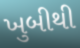
ખુબીથી